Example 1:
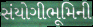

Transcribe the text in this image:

સંયોગીભૂમિની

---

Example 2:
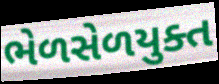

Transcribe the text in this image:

ભેળસેળયુક્ત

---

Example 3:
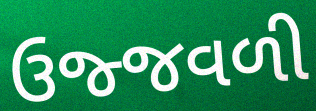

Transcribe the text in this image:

ઉજ્જવળી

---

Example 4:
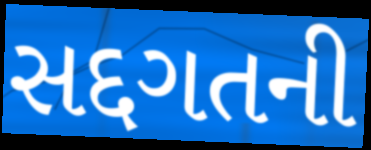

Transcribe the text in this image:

સદ્દગતની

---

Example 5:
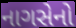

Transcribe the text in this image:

નાગસેનો